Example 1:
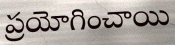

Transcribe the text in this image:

ప్రయోగించాయి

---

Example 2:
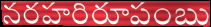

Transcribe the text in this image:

నరహరిరూపంబు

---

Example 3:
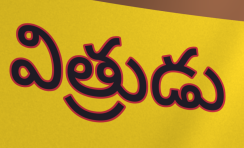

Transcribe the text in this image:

విత్రుడు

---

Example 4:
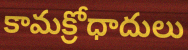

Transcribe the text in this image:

కామక్రోధాదులు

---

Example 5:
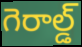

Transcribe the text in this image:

గెరాల్డ్